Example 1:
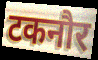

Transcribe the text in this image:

टकनौर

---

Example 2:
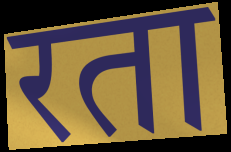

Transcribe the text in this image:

रता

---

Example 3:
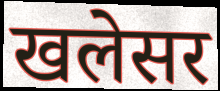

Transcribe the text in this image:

खलेसर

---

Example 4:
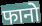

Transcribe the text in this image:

फानो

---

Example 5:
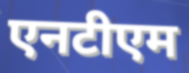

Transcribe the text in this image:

एनटीएम